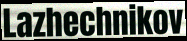
Lazhechnikov